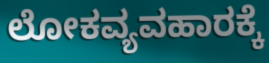
ಲೋಕವ್ಯವಹಾರಕ್ಕೆ